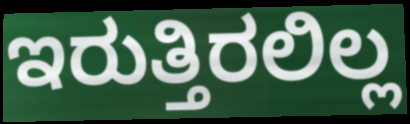
ಇರುತ್ತಿರಲಿಲ್ಲ